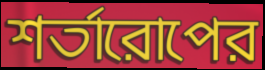
শর্তারোপের